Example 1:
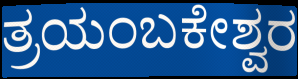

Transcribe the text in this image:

ತ್ರಯಂಬಕೇಶ್ವರ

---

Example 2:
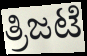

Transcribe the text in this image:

ತ್ರಿಜಟೆ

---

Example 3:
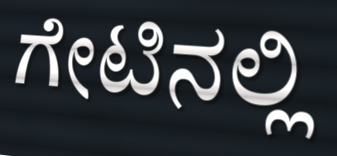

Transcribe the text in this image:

ಗೇಟಿನಲ್ಲಿ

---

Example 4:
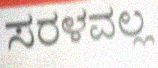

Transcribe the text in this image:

ಸರಳವಲ್ಲ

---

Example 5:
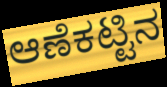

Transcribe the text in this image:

ಆಣೆಕಟ್ಟಿನ